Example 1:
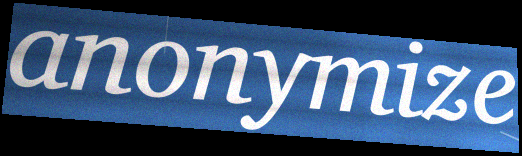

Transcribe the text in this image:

anonymize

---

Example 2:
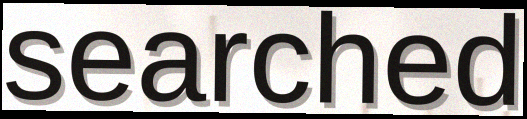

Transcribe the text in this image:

searched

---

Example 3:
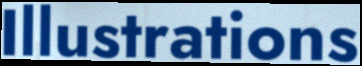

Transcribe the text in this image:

Illustrations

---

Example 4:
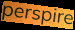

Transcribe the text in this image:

perspire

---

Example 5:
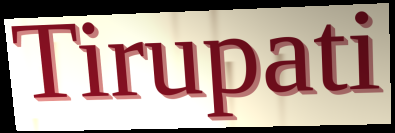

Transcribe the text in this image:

Tirupati